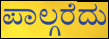
ಪಾಲ್ಗರೆದು